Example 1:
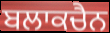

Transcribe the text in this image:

ਬਲਾਕਚੈਨ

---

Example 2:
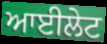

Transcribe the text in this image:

ਆਈਲੇਟ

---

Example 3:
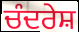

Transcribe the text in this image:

ਚੰਦਰੇਸ਼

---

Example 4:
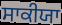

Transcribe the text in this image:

ਸਾਕੀਯਾ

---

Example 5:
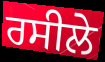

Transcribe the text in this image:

ਰਸੀਲੇ